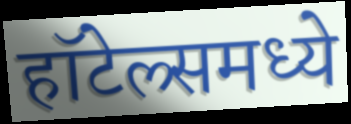
हॉटेल्समध्ये